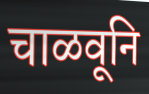
चाळवूनि